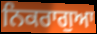
ਨਿਕਰਾਗੁਆ